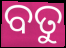
ବତୁ